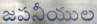
జపనీయుల